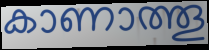
കാണാത്തൂ